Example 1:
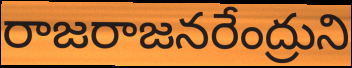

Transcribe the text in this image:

రాజరాజనరేంద్రుని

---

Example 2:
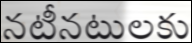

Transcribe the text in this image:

నటీనటులకు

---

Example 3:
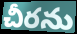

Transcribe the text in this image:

చీరను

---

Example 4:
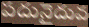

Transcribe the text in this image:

పదునైదువ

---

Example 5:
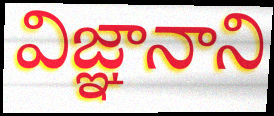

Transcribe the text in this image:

విజ్ఞానాని